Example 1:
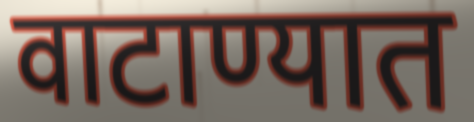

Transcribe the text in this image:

वाटाण्यात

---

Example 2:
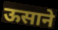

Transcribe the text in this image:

ऊसाने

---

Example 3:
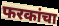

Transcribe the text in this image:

फरकांचा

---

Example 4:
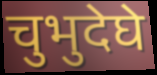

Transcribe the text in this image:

चुभुदेघे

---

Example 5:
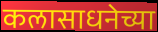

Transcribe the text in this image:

कलासाधनेच्या